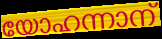
യോഹന്നാന്